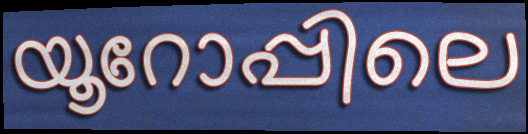
യൂറോപ്പിലെ